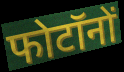
फोटॉनों